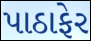
પાઠાફેર